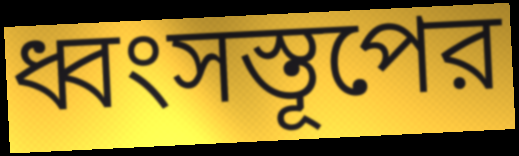
ধ্বংসস্তূপের